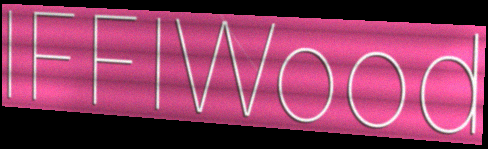
IFFIWood